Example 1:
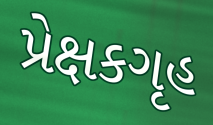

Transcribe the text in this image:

પ્રેક્ષકગૃહ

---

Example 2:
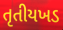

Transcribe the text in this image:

તૃતીયખડ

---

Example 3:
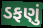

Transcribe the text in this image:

ડફણું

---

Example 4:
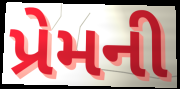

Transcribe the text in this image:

પ્રેમની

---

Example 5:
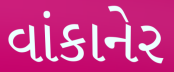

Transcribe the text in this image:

વાંકાનેર